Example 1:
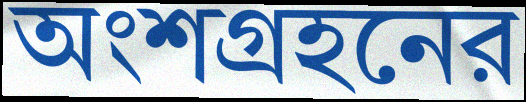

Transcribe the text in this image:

অংশগ্রহনের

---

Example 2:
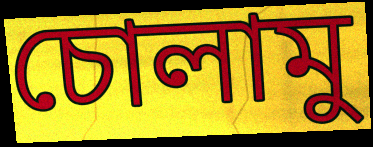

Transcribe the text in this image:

চোলামু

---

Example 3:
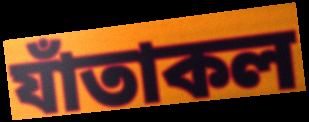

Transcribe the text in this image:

যাঁতাকল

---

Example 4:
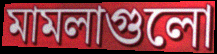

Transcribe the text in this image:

মামলাগুলো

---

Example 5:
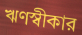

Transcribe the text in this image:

ঋণস্বীকার